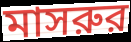
মাসরুর